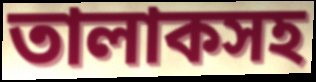
তালাকসহ